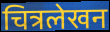
चित्रलेखन